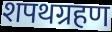
शपथग्रहण